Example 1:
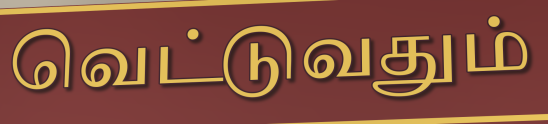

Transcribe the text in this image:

வெட்டுவதும்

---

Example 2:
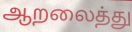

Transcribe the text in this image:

ஆறலைத்து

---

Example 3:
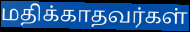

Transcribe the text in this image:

மதிக்காதவர்கள்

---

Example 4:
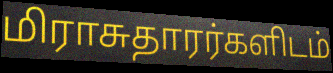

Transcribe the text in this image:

மிராசுதாரர்களிடம்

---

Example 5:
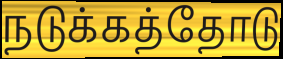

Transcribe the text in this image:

நடுக்கத்தோடு